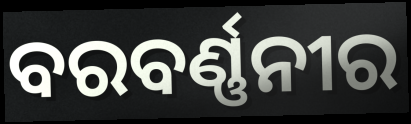
ବରବର୍ଣ୍ଣନୀର